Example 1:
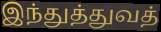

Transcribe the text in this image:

இந்துத்துவத்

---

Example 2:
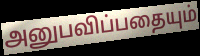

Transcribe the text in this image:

அனுபவிப்பதையும்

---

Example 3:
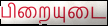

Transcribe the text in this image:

பிறையுடை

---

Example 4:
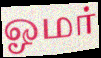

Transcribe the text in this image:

ஓமர்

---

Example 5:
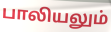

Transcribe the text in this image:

பாலியலும்